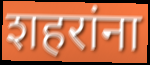
शहरांना